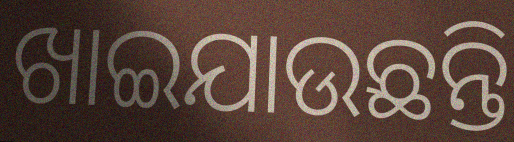
ଖାଇଯାଉଛନ୍ତି